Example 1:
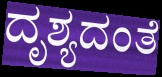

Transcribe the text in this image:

ದೃಶ್ಯದಂತೆ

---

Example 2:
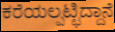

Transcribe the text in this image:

ಕರೆಯಲ್ಪಟ್ಟಿದ್ದಾನೆ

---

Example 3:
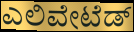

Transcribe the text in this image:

ಎಲಿವೇಟೆಡ್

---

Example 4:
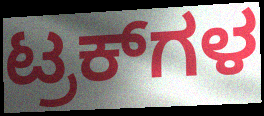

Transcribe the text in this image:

ಟ್ರಕ್‌ಗಳ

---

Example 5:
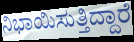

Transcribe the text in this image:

ನಿಭಾಯಿಸುತ್ತಿದ್ದಾರೆ